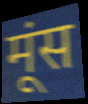
मूंस